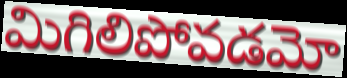
మిగిలిపోవడమో